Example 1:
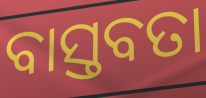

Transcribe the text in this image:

ବାସ୍ତବତା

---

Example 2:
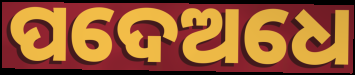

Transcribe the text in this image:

ପଦେଅଧେ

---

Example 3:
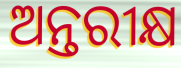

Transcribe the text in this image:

ଅନ୍ତରୀକ୍ଷ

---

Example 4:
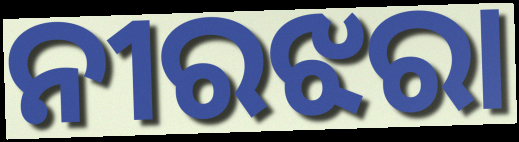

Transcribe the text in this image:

ନୀରଝରା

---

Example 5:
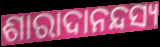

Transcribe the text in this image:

ଶାରାଦାନନ୍ଦସ୍ୟ